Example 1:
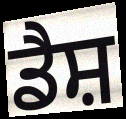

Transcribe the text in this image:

ਡੈਸ਼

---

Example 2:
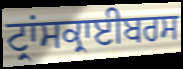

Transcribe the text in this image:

ਟ੍ਰਾਂਸਕ੍ਰਾਈਬਰਸ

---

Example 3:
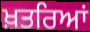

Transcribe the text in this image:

ਖ਼ਤਰਿਆਂ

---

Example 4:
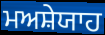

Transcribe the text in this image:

ਮਅਸ਼ੇਯਾਹ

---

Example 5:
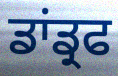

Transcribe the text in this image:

ਡਾਂਡ੍ਰਫ